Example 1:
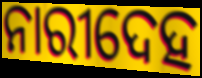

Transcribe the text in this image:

ନାରୀଦେହ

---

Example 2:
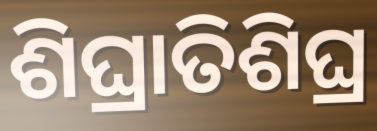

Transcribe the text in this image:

ଶିଘ୍ରାତିଶିଘ୍ର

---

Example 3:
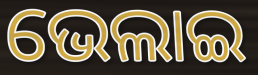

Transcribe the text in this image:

ଭେଲାଇ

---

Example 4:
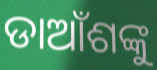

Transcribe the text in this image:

ଡାଆଁଶଙ୍କୁ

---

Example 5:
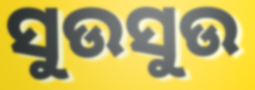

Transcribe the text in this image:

ସୁଉସୁଉ